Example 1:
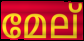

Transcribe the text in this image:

മേല്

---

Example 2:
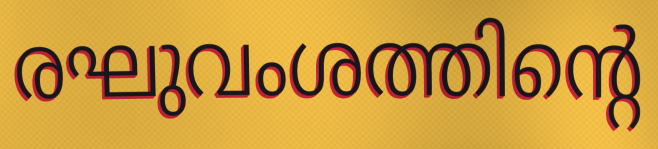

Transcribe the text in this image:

രഘുവംശത്തിന്റെ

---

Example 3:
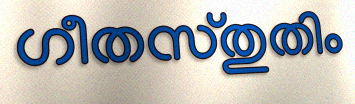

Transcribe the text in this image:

ഗീതസ്തുതിം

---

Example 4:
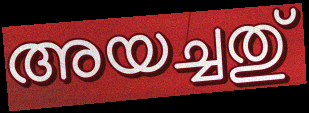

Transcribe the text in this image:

അയച്ചതു്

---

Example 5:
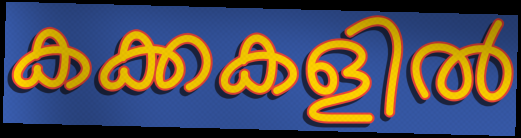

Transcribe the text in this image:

കക്കകളിൽ